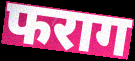
फराग